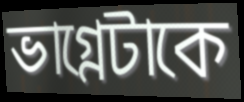
ভাগ্নেটাকে